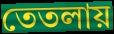
তেতলায়